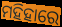
ମହିହାରେ